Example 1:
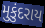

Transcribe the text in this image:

મુકુંદરાય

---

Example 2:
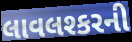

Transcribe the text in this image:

લાવલશ્કરની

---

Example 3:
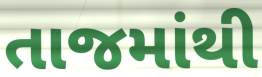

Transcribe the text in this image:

તાજમાંથી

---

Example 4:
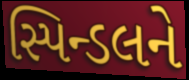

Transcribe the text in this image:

સ્પિન્ડલને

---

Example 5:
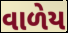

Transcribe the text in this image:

વાળેય